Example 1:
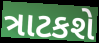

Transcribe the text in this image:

ત્રાટકશે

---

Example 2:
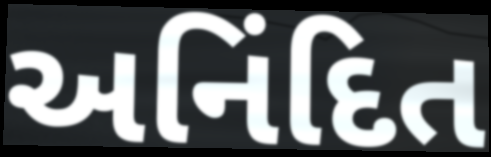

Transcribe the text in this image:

અનિંદિત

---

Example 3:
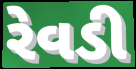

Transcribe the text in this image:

રેવડી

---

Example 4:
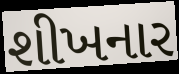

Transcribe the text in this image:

શીખનાર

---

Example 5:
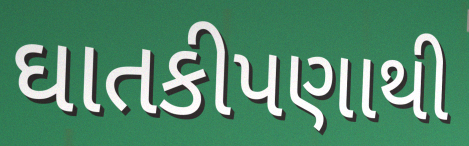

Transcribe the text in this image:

ઘાતકીપણાથી